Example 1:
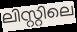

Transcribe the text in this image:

ലിസ്റ്റിലെ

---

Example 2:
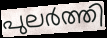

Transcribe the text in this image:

പുലർത്തി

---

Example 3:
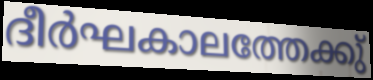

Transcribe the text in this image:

ദീർഘകാലത്തേക്കു്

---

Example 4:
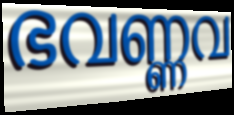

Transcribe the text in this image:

ഭവണ്ണവ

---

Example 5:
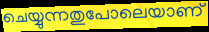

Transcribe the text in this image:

ചെയ്യുന്നതുപോലെയാണ്